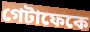
গেটাফেকে